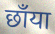
छाँया